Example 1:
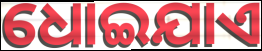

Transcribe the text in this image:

ଧୋଇଯାଏ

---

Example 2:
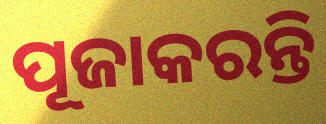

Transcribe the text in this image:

ପୂଜାକରନ୍ତି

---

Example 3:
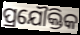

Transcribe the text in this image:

ପ୍ରଯୌକ୍ତିକ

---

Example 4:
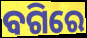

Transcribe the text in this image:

ବଗିରେ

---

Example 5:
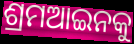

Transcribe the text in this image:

ଶ୍ରମଆଇନକୁ